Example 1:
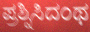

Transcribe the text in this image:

ಪ್ರಶ್ನಿಸಿದಂಥ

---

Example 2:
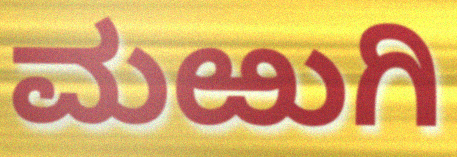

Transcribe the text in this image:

ಮಱುಗಿ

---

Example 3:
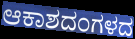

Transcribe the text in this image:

ಆಕಾಶದಂಗಳದ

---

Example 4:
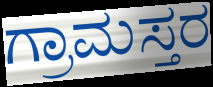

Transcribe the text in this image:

ಗ್ರಾಮಸ್ತರ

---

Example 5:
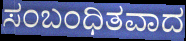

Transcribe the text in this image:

ಸಂಬಂಧಿತವಾದ